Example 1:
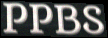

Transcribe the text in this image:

PPBS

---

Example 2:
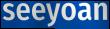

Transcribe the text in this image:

seeyoan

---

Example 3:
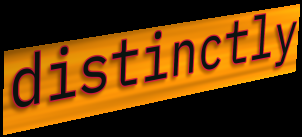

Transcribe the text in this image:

distinctly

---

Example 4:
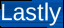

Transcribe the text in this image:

Lastly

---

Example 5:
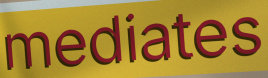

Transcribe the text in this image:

mediates